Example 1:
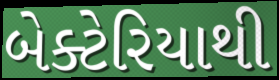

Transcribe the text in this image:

બેક્ટેરિયાથી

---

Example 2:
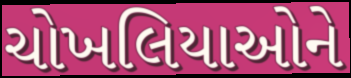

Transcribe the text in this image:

ચોખલિયાઓને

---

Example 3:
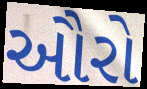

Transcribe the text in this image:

ઔરો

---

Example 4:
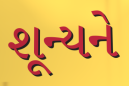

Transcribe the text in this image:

શૂન્યને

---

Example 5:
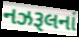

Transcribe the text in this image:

નઝરૂલનાં